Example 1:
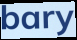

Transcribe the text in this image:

bary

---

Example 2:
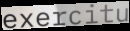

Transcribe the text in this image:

exercitu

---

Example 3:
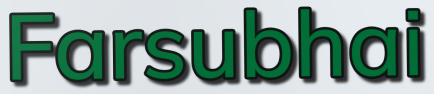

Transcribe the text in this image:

Farsubhai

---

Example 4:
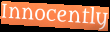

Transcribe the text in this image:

Innocently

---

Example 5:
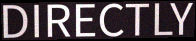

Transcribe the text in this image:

DIRECTLY